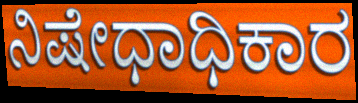
ನಿಷೇಧಾಧಿಕಾರ